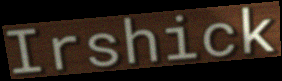
Irshick